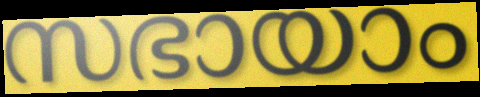
സഭായാം